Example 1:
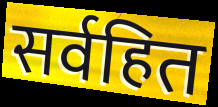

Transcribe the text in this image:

सर्वहित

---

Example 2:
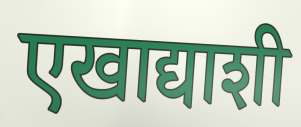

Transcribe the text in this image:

एखाद्याशी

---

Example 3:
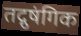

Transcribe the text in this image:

तद्नुषंगिक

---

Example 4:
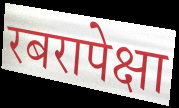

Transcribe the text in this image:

रबरापेक्षा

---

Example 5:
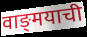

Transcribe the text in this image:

वाङ्मयाची